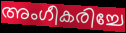
അംഗീകരിച്ചേ